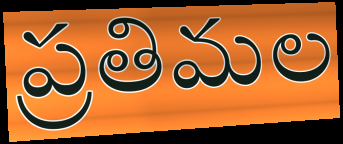
ప్రతిమల